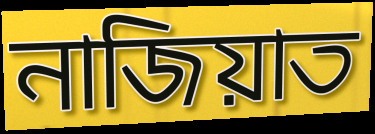
নাজিয়াত